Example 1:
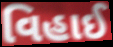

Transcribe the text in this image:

વિહાઈ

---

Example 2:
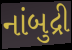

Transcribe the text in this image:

નાંબુદ્રી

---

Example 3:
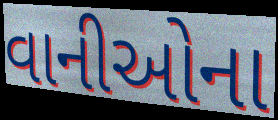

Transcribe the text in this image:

વાનીઓના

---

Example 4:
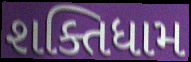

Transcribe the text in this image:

શક્તિધામ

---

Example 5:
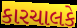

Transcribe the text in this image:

કારચાલકે